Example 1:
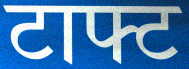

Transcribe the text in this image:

टाफ्ट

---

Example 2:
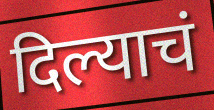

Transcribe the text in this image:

दिल्याचं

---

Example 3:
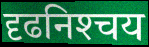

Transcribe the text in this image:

दृढनिश्‍चय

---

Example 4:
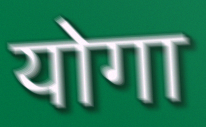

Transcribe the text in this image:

योगा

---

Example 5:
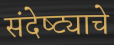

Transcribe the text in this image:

संदेष्ट्याचे